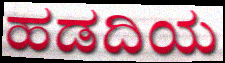
ಹಡದಿಯ